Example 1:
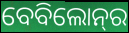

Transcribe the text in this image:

ବେବିଲୋନ୍‌ର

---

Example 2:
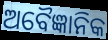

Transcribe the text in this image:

ଅବୈଜ୍ଞାନିକ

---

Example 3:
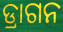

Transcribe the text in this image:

ଡ୍ରାଗନ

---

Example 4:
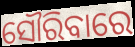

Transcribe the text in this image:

ସୌରିବାରେ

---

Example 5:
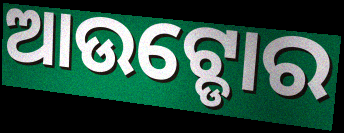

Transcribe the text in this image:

ଆଉଟ୍ଡୋର